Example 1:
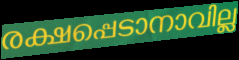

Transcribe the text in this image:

രക്ഷപ്പെടാനാവില്ല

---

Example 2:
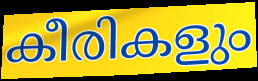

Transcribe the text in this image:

കീരികളും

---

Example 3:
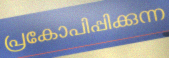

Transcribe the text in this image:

പ്രകോപിപ്പിക്കുന്ന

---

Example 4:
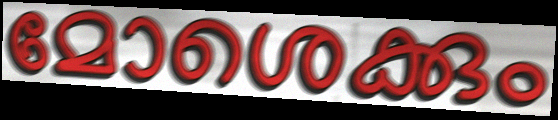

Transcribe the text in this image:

മോശെക്കും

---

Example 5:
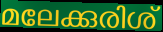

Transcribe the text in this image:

മലേക്കുരിശ്